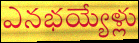
ఎనభయ్యేళ్లు